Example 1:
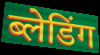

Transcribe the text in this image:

ब्लेडिंग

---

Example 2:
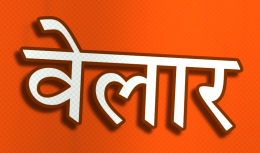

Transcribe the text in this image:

वेलार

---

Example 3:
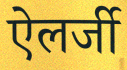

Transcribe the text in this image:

ऐलर्जी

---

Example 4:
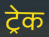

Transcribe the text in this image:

ट्रेक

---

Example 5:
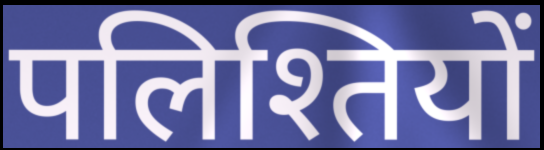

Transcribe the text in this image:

पलिश्तियों